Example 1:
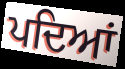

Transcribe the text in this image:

ਪਦਿਆਂ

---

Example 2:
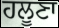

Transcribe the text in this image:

ਹਲੂਣਾ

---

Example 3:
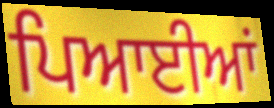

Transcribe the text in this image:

ਪਿਆਈਆਂ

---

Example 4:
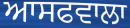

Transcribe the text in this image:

ਆਸਫਵਾਲਾ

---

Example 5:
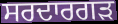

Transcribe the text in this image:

ਸਰਦਾਰਗੜ